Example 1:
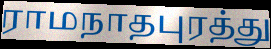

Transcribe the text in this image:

ராமநாதபுரத்து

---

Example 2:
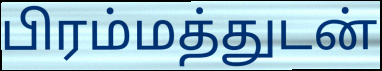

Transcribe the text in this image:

பிரம்மத்துடன்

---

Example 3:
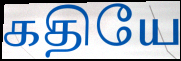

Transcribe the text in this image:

கதியே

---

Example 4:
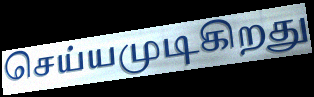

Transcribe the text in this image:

செய்யமுடிகிறது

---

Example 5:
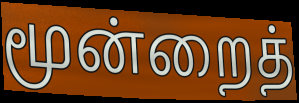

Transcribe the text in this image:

மூன்றைத்